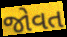
જોવત